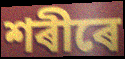
শৰীৰে